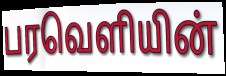
பரவெளியின்